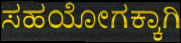
ಸಹಯೋಗಕ್ಕಾಗಿ